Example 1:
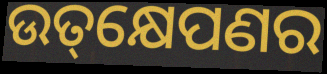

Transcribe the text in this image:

ଉତ୍‌କ୍ଷେପଣର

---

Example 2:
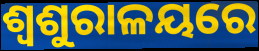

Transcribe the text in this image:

ଶ୍ଵଶୁରାଳୟରେ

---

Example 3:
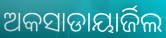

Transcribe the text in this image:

ଅକସାଡାୟାର୍ଜିଲ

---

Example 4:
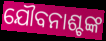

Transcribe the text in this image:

ଯୌବନାଶ୍ଚଙ୍କ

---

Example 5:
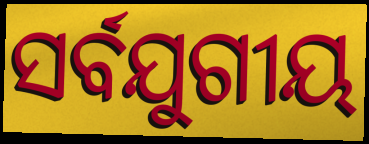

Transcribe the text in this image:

ସର୍ବଯୁଗୀୟ